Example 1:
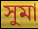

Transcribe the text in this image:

সুমা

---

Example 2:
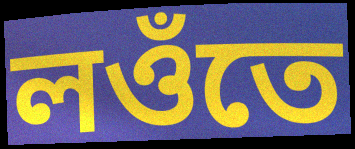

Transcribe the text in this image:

লওঁতে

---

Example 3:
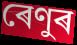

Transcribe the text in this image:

ৰেণুৰ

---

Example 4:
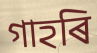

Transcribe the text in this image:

গাহৰি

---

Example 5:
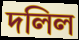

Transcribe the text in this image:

দলিল